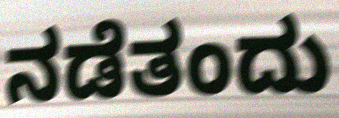
ನಡೆತಂದು